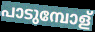
പാടുമ്പോള്